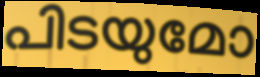
പിടയുമോ